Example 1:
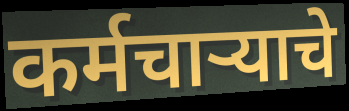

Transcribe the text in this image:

कर्मचाऱ्याचे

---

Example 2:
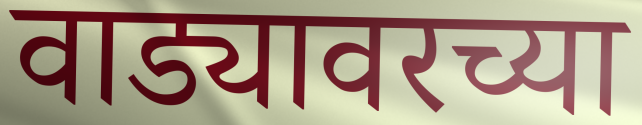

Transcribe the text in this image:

वाड्यावरच्या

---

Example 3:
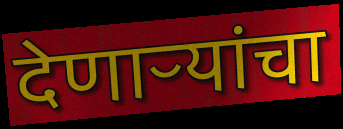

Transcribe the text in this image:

देणाऱ्यांचा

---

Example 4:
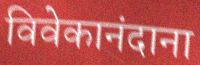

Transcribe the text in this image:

विवेकानंदाना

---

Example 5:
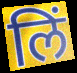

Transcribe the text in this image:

लिं